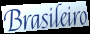
Brasileiro